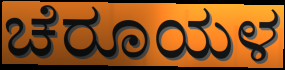
ಚೆರೂಯಳ